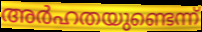
അർഹതയുണ്ടെന്ന്